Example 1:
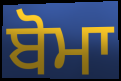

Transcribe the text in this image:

ਬੋਮਾ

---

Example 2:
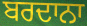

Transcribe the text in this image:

ਬਰਦਾਨਾ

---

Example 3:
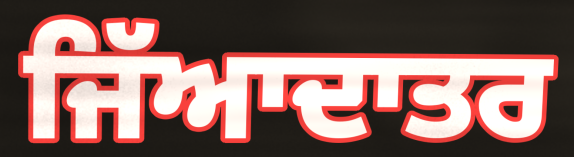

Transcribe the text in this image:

ਜਿੱਆਦਾਤਰ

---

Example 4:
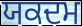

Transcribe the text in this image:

ਯਕਦਮ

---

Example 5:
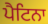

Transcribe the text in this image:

ਪੈਟਿਨਾ